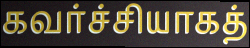
கவர்ச்சியாகத்